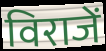
विराजें